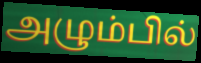
அழும்பில்